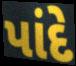
પાંદે